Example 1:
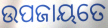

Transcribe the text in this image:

ଉପଜାୟତେ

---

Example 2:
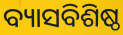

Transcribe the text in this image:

ବ୍ୟାସବିଶିଷ୍ଠ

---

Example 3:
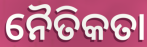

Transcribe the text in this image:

ନୈତିକତା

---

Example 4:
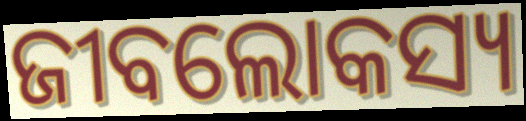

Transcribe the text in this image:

ଜୀବଲୋକସ୍ୟ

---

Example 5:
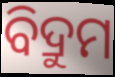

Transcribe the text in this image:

ବିଦ୍ରୁମ